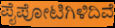
ಪೈಪೋಟಿಗಿಳಿದಿವೆ